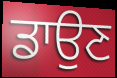
ਡਾਉਣ